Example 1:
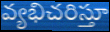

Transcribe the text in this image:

వ్యభిచరిస్తూ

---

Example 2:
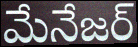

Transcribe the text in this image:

మేనేజర్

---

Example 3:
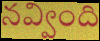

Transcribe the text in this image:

నవ్వింది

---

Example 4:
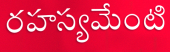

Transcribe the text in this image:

రహస్యమేంటి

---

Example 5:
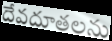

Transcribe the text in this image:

దేవదూతలను